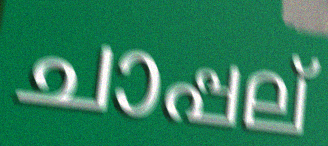
ചാപ്പല്